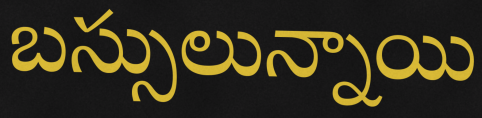
బస్సులున్నాయి